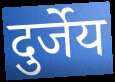
दुर्जेय